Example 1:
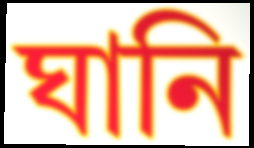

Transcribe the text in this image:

ঘানি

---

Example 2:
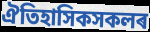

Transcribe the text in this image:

ঐতিহাসিকসকলৰ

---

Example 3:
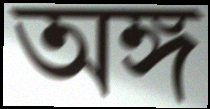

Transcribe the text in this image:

অঙ্গ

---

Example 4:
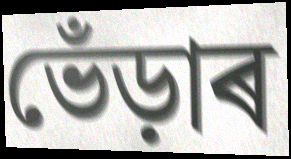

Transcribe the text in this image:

ভেঁড়াৰ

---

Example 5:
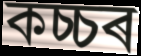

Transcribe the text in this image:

কচ্চৰ